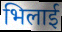
भिलाई